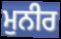
ਮੁਨੀਰ